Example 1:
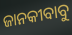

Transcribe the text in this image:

ଜାନକୀବାବୁ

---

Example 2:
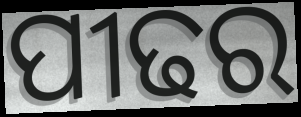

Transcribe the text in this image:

ପୀଢର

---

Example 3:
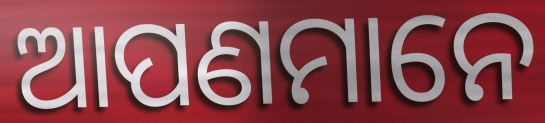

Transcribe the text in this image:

ଆପଣମାନେ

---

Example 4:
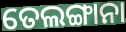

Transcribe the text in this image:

ତେଲଙ୍ଗାନା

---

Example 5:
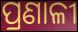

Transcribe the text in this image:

ପ୍ରଣାଳୀ